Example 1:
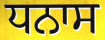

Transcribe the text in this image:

ਧਨਾਸ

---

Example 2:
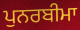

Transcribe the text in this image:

ਪੁਨਰਬੀਮਾ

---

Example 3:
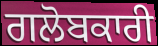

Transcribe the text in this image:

ਗਲੋਬਕਾਰੀ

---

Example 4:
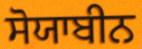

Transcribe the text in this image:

ਸੋਯਾਬੀਨ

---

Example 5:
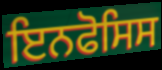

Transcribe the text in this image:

ਇਨਫੋਸਿਸ